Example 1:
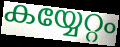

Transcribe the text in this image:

കയ്യേറ്റം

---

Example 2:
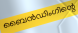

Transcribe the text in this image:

ബൈൻഡിംഗിന്റെ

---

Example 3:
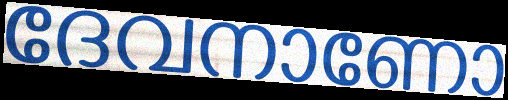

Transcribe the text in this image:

ദേവനാണോ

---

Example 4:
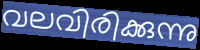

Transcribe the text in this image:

വലവിരിക്കുന്നു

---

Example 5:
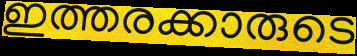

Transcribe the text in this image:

ഇത്തരക്കാരുടെ